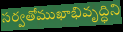
సర్వతోముఖాభివృద్ధిని